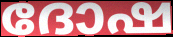
ദോഷ